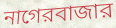
নাগেরবাজার